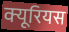
क्यूरियस